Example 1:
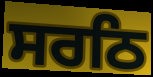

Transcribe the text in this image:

ਸਰਠਿ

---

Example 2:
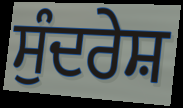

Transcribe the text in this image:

ਸੁੰਦਰੇਸ਼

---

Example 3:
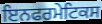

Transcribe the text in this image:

ਇਨਫਰਮੇਟਿਕਸ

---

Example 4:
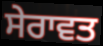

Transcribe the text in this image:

ਸੇਰਾਵਤ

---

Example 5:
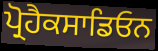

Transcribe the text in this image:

ਪ੍ਰੋਹੈਕਸਾਡਿਓਨ